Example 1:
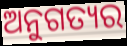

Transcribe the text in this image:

ଅନୁଗତ୍ୟର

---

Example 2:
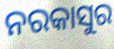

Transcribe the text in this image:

ନରକାସୁର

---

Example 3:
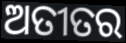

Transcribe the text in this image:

ଅତୀତର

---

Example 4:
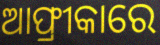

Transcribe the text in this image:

ଆଫ୍ରୀକାରେ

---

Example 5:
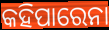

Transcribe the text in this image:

କହିପାରେନା